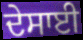
ਦੇਸਾਈ